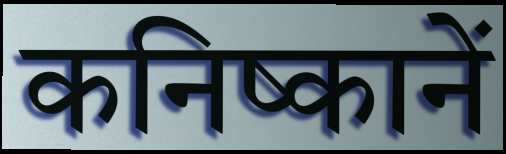
कनिष्कानें